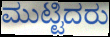
ಮುಟ್ಟಿದರು